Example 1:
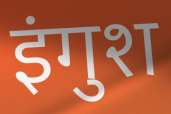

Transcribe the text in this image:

इंगुश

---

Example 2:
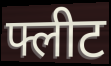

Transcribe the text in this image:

फ्लीट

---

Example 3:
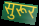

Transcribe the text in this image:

सुरूर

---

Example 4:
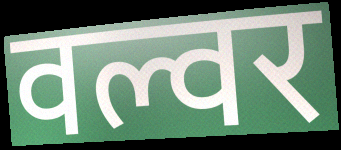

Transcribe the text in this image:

वल्वर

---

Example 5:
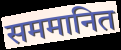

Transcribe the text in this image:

सममानित